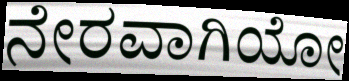
ನೇರವಾಗಿಯೋ